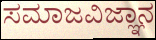
ಸಮಾಜವಿಜ್ಞಾನ